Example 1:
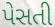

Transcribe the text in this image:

પેસતી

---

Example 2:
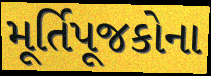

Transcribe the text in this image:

મૂર્તિપૂજકોના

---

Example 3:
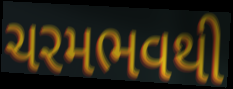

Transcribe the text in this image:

ચરમભવથી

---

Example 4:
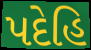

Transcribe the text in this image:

પદેહિ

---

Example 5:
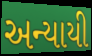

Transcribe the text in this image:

અન્યાયી